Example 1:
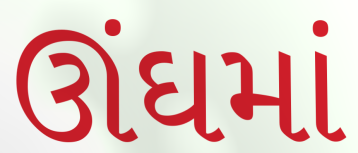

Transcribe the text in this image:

ઊંઘમાં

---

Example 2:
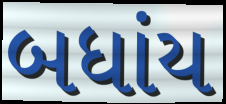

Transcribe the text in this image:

બધાંય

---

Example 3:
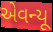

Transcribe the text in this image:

એવન્યૂ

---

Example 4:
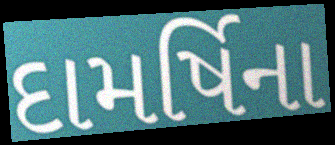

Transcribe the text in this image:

દામર્ષિના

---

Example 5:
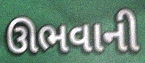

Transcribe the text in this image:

ઊભવાની